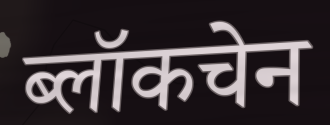
ब्लॉकचेन